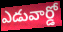
ఎడువార్డో